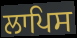
ਲਾਪਿਸ